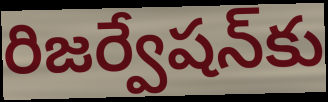
రిజర్వేషన్‌కు